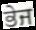
ਭੇਜ